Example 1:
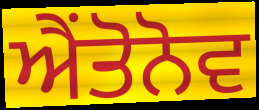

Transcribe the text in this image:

ਐਂਤੋਨੋਵ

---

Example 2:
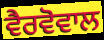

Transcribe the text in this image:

ਵੈਰਵੋਵਾਲ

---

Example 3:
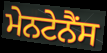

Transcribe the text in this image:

ਮੇਨਟੇਨੈਂਸ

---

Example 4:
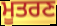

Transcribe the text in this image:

ਮੂਤਰਣ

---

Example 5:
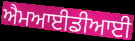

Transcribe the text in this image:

ਐਮਆਈਡੀਆਈ